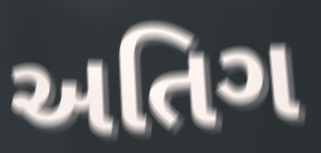
અતિગ